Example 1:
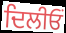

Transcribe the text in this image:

ਦਿਲੀਓਂ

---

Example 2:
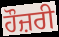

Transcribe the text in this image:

ਹੌਜ਼ਰੀ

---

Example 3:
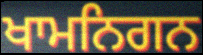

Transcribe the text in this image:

ਖਾਮਨਿਗਨ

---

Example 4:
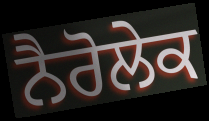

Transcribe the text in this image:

ਨੈਰੋਲੇਕ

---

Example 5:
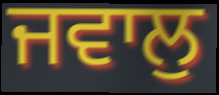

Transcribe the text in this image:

ਜਵਾਲੁ